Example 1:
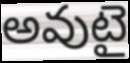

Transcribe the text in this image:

అవుటై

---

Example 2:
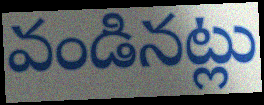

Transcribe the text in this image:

వండినట్లు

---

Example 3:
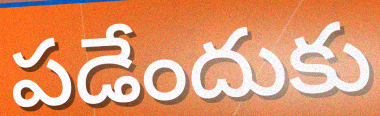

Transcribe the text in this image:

పడేందుకు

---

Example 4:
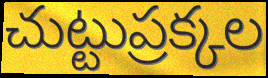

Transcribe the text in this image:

చుట్టుప్రక్కల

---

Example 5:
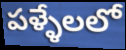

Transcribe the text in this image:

పళ్ళేలలో